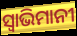
ସ୍ବାଭିମାନୀ